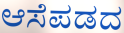
ಆಸೆಪಡದ